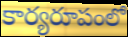
కార్యరూపంలో